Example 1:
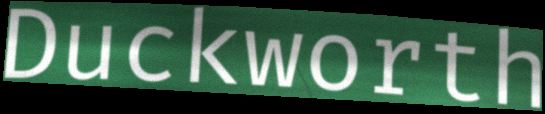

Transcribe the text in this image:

Duckworth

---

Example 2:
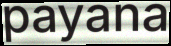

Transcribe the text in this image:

payana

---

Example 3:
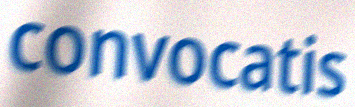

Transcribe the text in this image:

convocatis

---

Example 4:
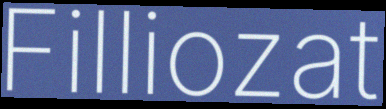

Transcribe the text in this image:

Filliozat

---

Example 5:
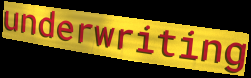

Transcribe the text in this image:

underwriting